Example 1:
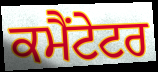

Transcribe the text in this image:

ਕਮੈਂਟੇਟਰ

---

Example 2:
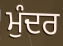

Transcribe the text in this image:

ਮੁੰਦਰ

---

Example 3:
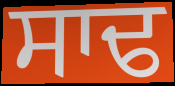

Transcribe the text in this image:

ਸਾਢ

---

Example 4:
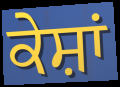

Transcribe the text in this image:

ਕੇਸ਼ਾਂ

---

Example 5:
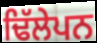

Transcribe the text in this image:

ਢਿੱਲੇਪਨ